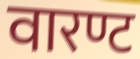
वारण्ट